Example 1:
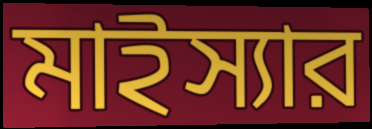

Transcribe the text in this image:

মাইস্যার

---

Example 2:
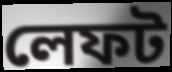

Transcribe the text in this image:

লেফট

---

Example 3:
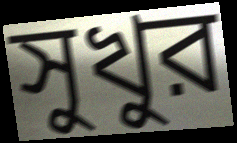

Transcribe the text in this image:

সুখুর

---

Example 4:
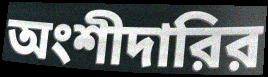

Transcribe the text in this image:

অংশীদারির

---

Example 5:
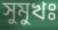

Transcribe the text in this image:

সুমুখঃ